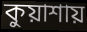
কুয়াশায়